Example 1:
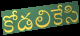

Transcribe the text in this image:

కోడలికేసి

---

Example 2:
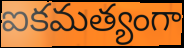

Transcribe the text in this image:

ఐకమత్యంగా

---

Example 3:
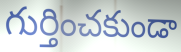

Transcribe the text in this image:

గుర్తించకుండా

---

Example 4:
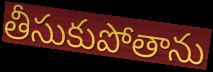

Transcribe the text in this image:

తీసుకుపోతాను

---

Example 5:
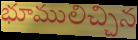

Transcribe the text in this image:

భూములిచ్చిన